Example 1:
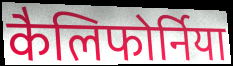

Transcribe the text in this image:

कैलिफोर्निया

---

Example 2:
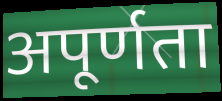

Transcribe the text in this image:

अपूर्णता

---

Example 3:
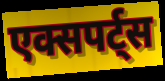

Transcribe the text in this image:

एक्सपर्ट्स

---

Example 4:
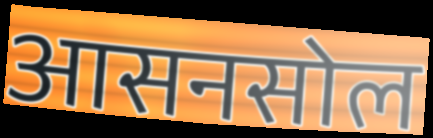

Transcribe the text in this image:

आसनसोल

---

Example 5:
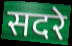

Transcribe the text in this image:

सदरे